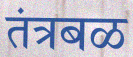
तंत्रबळ